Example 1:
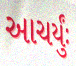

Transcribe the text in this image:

આચર્યુંઃ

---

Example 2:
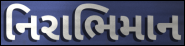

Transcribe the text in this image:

નિરાભિમાન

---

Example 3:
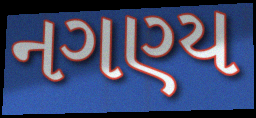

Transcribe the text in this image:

નગણ્ય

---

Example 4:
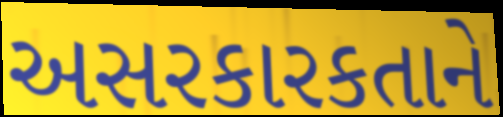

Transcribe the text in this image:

અસરકારકતાને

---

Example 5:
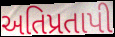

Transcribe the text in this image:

અતિપ્રતાપી